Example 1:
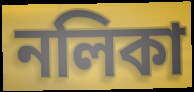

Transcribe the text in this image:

নলিকা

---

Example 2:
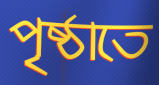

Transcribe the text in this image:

পৃষ্ঠাতে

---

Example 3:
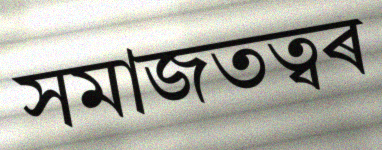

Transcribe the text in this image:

সমাজতত্বৰ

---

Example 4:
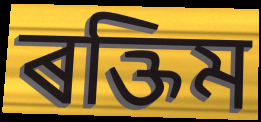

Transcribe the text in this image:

ৰক্তিম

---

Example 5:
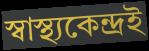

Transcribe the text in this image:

স্বাস্থ্যকেন্দ্ৰই